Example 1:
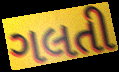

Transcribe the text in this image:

ગલતી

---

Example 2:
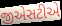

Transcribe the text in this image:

જીએસટીએ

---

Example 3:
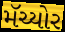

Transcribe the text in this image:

મૅચ્યોર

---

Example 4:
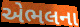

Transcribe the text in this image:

એભલના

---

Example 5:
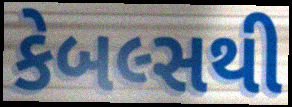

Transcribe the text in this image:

કેબલ્સથી